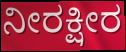
ನೀರಕ್ಷೀರ